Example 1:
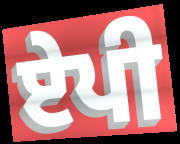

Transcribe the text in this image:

ਏਪੀ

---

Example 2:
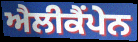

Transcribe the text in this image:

ਐਲੀਕੈਂਪੇਨ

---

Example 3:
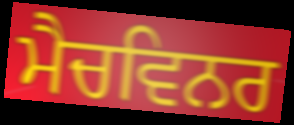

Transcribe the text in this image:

ਮੈਚਵਿਨਰ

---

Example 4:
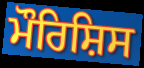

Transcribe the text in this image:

ਮੌਰਿਸ਼ਿਸ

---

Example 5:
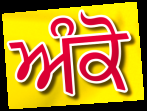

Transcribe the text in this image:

ਅੰਕੋ